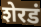
शेरडं